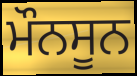
ਮੌਨਸੂਨ